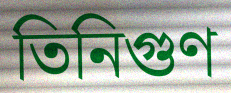
তিনিগুণ